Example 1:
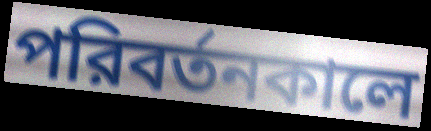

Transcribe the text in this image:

পরিবর্তনকালে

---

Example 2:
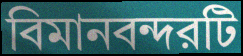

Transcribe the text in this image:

বিমানবন্দরটি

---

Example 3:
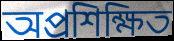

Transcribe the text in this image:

অপ্রশিক্ষিত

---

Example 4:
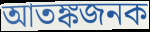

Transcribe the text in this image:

আতঙ্কজনক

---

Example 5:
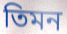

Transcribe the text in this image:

তিমন